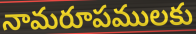
నామరూపములకు